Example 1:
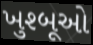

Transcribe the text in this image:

ખુશ્બૂઓ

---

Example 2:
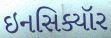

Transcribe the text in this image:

ઇનસિક્યૉર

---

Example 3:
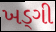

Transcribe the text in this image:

ખડ્ગી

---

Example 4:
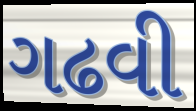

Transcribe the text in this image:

ગઢવી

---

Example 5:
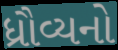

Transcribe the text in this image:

ધ્રૌવ્યનો